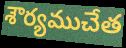
శౌర్యముచేత